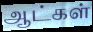
ஆட்கள்